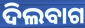
ଦିଲବାଗ